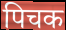
पिचक